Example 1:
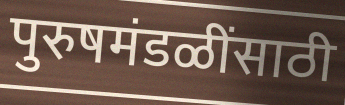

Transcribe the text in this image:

पुरुषमंडळींसाठी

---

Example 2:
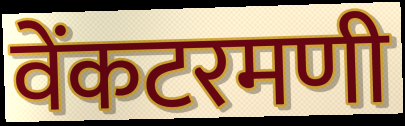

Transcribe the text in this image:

वेंकटरमणी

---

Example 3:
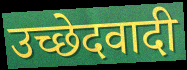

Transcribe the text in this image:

उच्छेदवादी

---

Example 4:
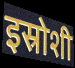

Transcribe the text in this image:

इस्रोशी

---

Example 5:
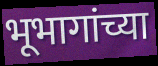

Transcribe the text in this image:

भूभागांच्या